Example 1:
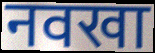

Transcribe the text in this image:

नवखा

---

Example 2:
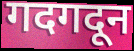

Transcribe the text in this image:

गदगदून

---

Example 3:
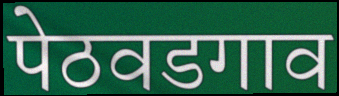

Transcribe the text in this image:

पेठवडगाव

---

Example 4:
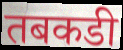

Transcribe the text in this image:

तबकडी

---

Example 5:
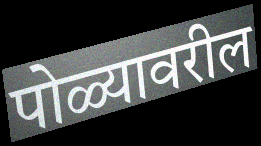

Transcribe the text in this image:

पोळ्यावरील